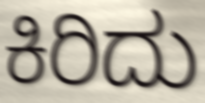
ಕಿರಿದು